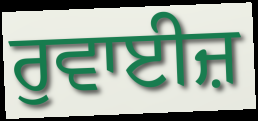
ਰੁਵਾਈਜ਼